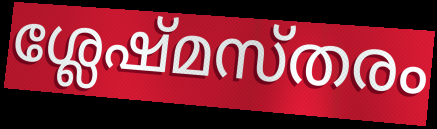
ശ്ലേഷ്മസ്തരം